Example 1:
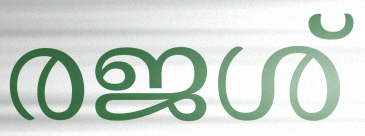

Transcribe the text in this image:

രജശ്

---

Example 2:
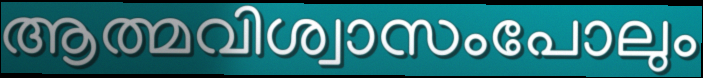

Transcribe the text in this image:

ആത്മവിശ്വാസംപോലും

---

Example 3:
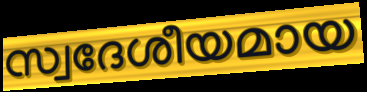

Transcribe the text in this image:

സ്വദേശീയമായ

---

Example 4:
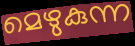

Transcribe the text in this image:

മെഴുകുന്ന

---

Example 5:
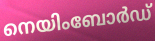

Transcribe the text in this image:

നെയിംബോർഡ്